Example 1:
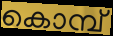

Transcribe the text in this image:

കൊമ്പ്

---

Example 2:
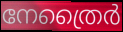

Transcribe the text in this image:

നേത്രൈർ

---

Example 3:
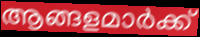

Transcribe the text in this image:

ആങ്ങളമാർക്ക്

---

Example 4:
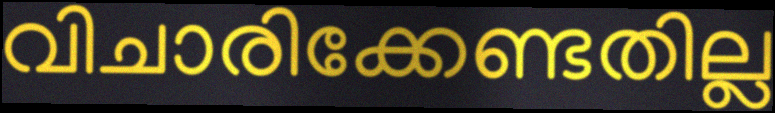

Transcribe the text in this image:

വിചാരിക്കേണ്ടതില്ല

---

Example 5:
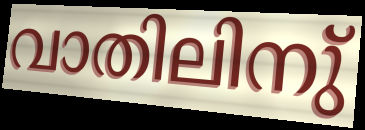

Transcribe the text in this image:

വാതിലിനു്